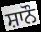
ਸ਼ਾਨੌ